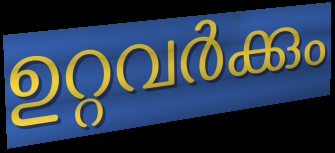
ഉറ്റവർക്കും